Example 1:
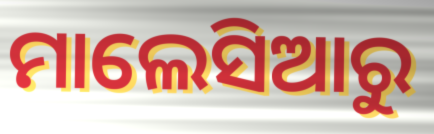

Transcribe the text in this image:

ମାଲେସିଆରୁ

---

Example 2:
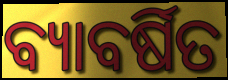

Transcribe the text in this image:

ବ୍ୟାବର୍ଷିତ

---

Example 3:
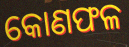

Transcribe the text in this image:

କୋଣଫଳ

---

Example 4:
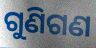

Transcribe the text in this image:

ଗୁଣିଗଣ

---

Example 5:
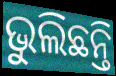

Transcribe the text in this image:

ଭୁଲିଛନ୍ତି